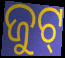
ଜୁଟ୍